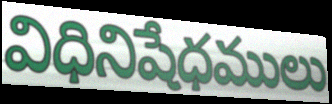
విధినిషేధములు